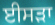
ਈਸੜਾ